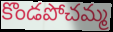
కొండపోచమ్మ